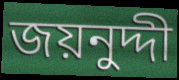
জয়নুদ্দী